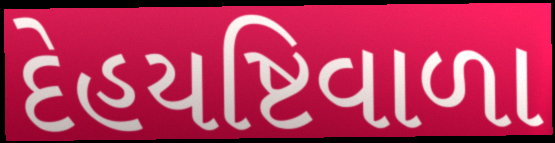
દેહયષ્ટિવાળા